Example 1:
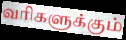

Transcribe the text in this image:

வரிகளுக்கும்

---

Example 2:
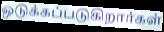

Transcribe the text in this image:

ஒடுக்கப்படுகிறார்கள்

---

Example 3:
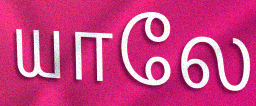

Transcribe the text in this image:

யாலே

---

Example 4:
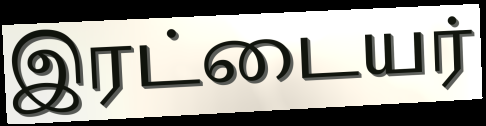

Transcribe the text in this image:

இரட்டையர்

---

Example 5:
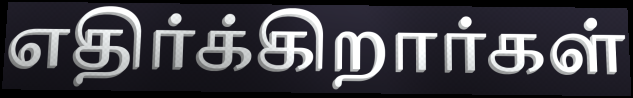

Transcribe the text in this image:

எதிர்க்கிறார்கள்